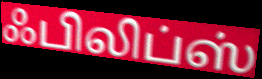
ஃபிலிப்ஸ்